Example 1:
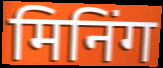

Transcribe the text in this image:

मिनिंग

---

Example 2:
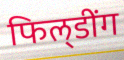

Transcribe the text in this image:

फिल्डींग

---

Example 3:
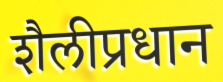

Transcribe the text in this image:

शैलीप्रधान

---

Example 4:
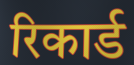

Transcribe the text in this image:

रिकार्ड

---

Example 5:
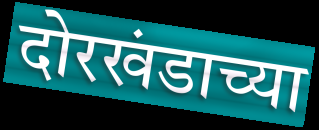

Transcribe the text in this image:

दोरखंडाच्या